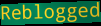
Reblogged